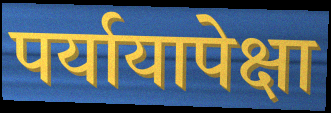
पर्यायापेक्षा